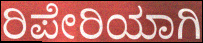
ರಿಪೇರಿಯಾಗಿ